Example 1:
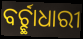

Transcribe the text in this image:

ବର୍ଚ୍ଛାଧାରୀ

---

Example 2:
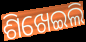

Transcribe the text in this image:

ଶିଖେଇଲି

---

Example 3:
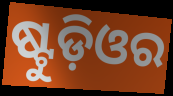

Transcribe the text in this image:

ଷ୍ଟୁଡ଼ିଓର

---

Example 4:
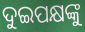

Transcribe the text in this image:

ଦୁଇପକ୍ଷଙ୍କୁ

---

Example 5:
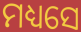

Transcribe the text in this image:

ମଧ୍ୟସେ